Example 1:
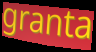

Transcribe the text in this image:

granta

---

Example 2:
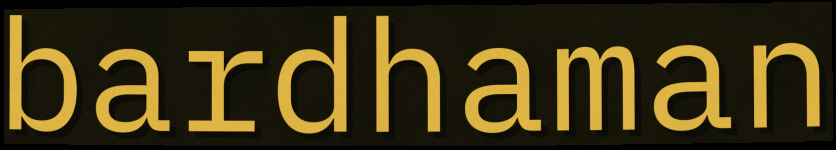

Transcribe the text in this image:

bardhaman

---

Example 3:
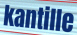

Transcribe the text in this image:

kantille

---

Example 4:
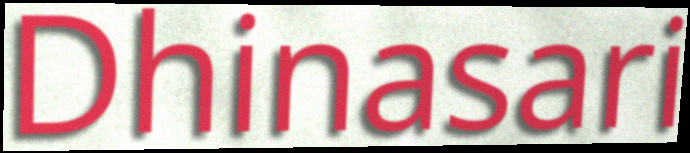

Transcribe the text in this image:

Dhinasari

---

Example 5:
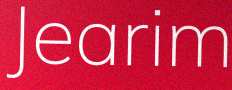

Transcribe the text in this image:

Jearim